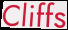
Cliffs